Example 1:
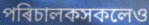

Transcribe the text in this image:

পৰিচালকসকলেও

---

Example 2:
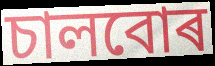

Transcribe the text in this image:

চালবোৰ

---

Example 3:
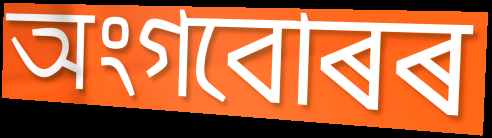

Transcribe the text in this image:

অংগবোৰৰ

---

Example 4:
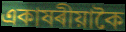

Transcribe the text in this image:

একাষৰীয়াকৈ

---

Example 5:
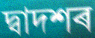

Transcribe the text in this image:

দ্বাদশৰ